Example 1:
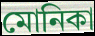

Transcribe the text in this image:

মোনিকা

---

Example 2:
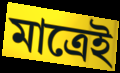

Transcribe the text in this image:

মাত্রেই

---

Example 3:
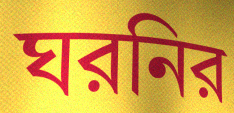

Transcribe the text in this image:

ঘরনির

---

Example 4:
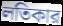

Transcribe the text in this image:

লতিকার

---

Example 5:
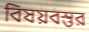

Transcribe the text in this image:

বিষয়বস্তুর